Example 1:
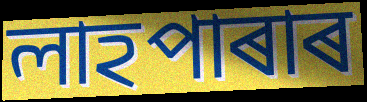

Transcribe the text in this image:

লাহপাৰাৰ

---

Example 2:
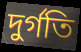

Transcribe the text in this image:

দুৰ্গতি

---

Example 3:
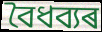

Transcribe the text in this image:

বৈধব্যৰ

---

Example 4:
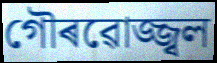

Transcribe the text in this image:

গৌৰৱোজ্জ্বল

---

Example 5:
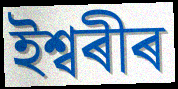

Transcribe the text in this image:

ইশ্বৰীৰ